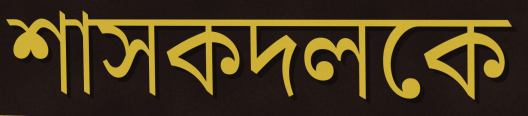
শাসকদলকে